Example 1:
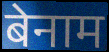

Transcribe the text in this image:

बेनाम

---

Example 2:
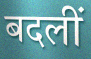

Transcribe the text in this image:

बदलीं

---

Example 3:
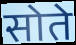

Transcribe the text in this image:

सोते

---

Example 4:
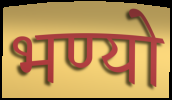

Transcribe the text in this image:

भण्यो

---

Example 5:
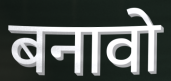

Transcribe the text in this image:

बनावो